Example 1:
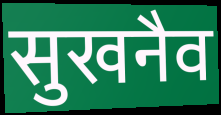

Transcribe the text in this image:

सुखनैव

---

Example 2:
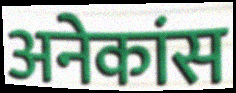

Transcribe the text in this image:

अनेकांस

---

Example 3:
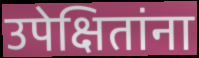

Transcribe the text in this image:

उपेक्षितांना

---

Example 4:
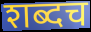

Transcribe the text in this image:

शब्दच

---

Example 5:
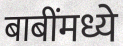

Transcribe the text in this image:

बाबींमध्ये